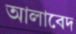
আলাবেদ